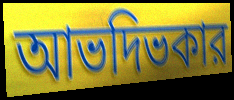
আভদিভকার